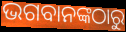
ଭଗବାନଙ୍କଠାରୁ